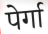
पेर्गा